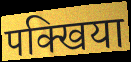
पक्खिया